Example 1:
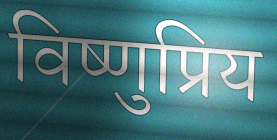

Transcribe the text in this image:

विष्णुप्रिय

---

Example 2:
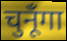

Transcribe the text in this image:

चुनूँगा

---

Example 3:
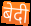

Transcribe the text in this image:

बेदी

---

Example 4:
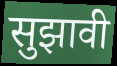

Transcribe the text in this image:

सुझावी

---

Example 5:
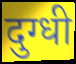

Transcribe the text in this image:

दुग्धी